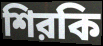
শিরকি